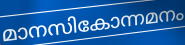
മാനസികോന്നമനം